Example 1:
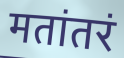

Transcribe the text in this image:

मतांतरं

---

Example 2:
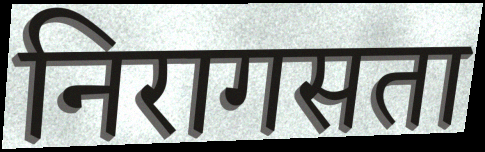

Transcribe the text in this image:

निरागसता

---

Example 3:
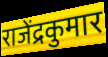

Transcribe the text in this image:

राजेंद्रकुमार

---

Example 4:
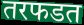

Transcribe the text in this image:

तरफडत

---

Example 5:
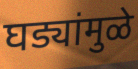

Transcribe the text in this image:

घड्यांमुळे